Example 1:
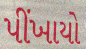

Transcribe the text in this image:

પીંખાયો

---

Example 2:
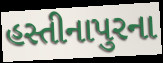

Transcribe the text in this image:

હસ્તીનાપુરના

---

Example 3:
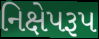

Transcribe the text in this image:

નિક્ષેપરૂપ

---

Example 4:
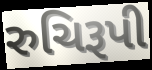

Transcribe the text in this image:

રુચિરૂપી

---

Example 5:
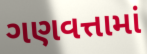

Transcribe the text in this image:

ગણવત્તામાં